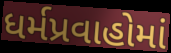
ધર્મપ્રવાહોમાં